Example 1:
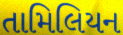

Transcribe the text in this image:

તામિલિયન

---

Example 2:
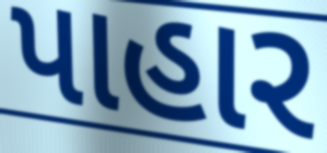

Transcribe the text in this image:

પાહાર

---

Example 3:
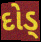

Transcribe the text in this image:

દોડ્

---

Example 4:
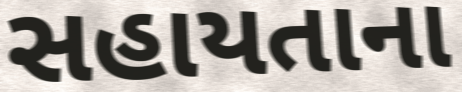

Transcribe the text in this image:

સહાયતાના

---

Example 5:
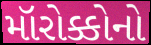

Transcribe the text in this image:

મૉરોક્કોનો